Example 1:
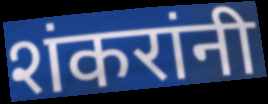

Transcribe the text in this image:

शंकरांनी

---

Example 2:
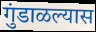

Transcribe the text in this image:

गुंडाळल्यास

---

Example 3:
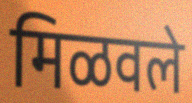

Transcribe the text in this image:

मिळवले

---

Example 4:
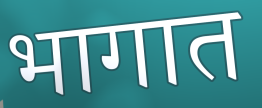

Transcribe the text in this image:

भागात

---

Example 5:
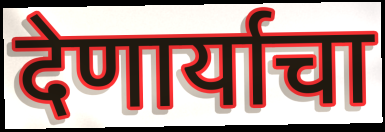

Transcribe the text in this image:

देणार्याचा